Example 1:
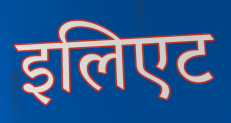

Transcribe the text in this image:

इलिएट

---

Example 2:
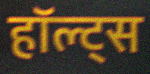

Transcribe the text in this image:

हॉल्ट्स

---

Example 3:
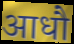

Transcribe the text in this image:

आधौ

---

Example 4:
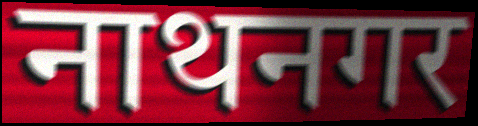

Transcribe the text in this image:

नाथनगर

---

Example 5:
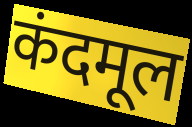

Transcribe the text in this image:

कंदमूल